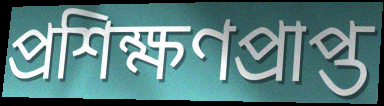
প্রশিক্ষণপ্রাপ্ত